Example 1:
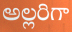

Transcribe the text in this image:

అల్లరిగా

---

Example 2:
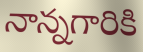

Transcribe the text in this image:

నాన్నగారికి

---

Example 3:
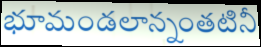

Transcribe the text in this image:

భూమండలాన్నంతటినీ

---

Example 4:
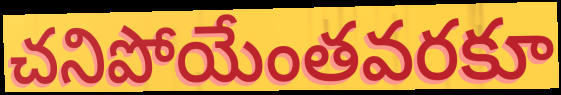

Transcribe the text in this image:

చనిపోయేంతవరకూ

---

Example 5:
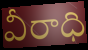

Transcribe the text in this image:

వీరాధి